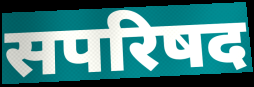
सपरिषद